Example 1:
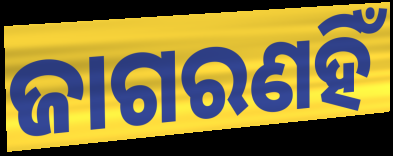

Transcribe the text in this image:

ଜାଗରଣହିଁ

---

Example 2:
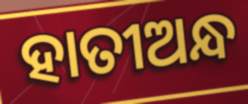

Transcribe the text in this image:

ହାତୀଅନ୍ଧ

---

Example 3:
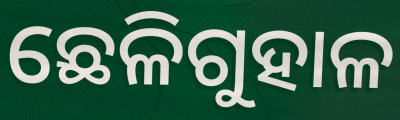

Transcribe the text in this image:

ଛେଳିଗୁହାଳ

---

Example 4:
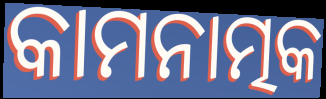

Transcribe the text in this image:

କାମନାତ୍ମକ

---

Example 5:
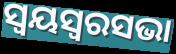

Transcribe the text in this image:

ସ୍ୱୟସ୍ୱରସଭା